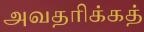
அவதரிக்கத்